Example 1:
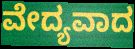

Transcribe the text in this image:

ವೇದ್ಯವಾದ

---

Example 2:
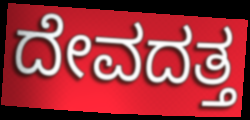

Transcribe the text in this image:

ದೇವದತ್ತ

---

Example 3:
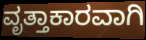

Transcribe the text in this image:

ವೃತ್ತಾಕಾರವಾಗಿ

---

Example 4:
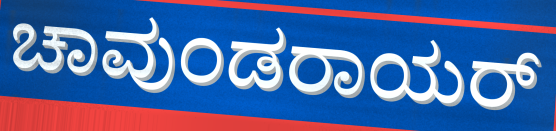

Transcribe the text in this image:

ಚಾವುಂಡರಾಯರ್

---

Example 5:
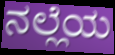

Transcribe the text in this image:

ನಲ್ಲೆಯ